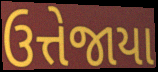
ઉત્તેજાયા